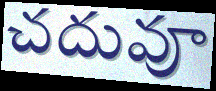
చదువూ